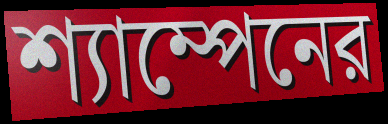
শ্যাম্পেনের